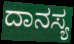
ದಾನಸ್ಯ